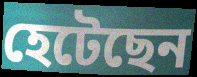
হেটেছেন